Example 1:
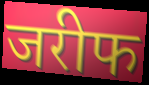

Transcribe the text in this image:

जरीफ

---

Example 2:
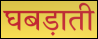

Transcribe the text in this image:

घबड़ाती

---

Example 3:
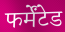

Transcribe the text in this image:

फर्मेंटेड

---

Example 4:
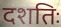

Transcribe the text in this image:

दशतिः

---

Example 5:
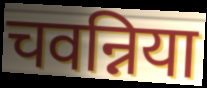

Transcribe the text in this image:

चवन्निया